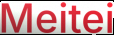
Meitei